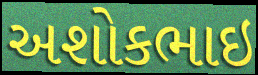
અશોકભાઇ